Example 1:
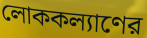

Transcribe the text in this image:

লোককল্যাণের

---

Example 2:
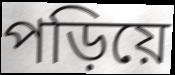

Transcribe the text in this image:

পড়িয়ে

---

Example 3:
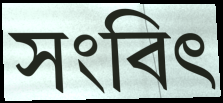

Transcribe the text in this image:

সংবিৎ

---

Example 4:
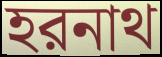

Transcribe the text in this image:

হরনাথ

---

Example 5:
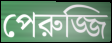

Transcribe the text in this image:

পেরুজ্জি